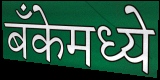
बँकेमध्ये